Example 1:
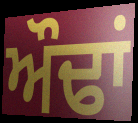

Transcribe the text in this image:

ਔਢਾਂ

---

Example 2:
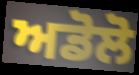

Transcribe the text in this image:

ਅਡੋਲੋ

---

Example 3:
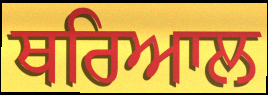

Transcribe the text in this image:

ਥਰਿਆਲ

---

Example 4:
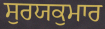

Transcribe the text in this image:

ਸੁਰਯਕੁਮਾਰ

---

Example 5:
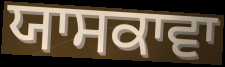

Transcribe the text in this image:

ਯਾਸਕਾਵਾ